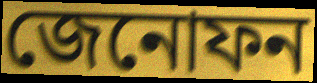
জেনোফন